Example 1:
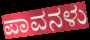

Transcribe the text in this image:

ಪಾವನಳು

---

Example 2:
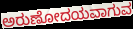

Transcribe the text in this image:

ಅರುಣೋದಯವಾಗುವ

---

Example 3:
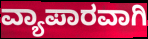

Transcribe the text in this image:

ವ್ಯಾಪಾರವಾಗಿ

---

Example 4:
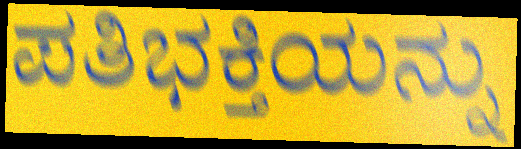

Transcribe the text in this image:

ಪತಿಭಕ್ತಿಯನ್ನು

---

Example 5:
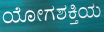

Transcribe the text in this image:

ಯೋಗಶಕ್ತಿಯ